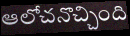
ఆలోచనొచ్చింది